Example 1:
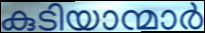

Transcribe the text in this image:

കുടിയാന്മാർ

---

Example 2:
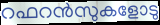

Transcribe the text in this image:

റഫറൻസുകളോടു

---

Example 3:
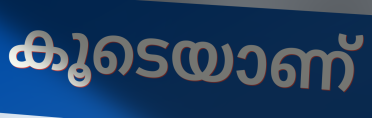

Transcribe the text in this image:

കൂടെയാണ്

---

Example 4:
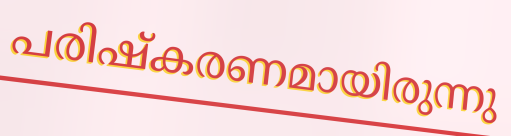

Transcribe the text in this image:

പരിഷ്കരണമായിരുന്നു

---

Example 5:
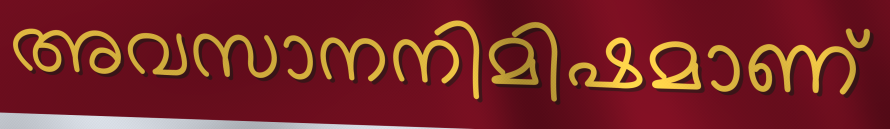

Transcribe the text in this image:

അവസാനനിമിഷമാണ്